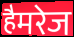
हैमरेज